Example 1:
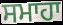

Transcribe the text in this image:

ਸਮਾਹਾ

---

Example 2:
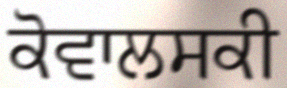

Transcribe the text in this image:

ਕੋਵਾਲਸਕੀ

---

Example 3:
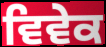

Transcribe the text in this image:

ਵਿਵੇਕ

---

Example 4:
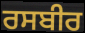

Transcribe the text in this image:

ਰਸਬੀਰ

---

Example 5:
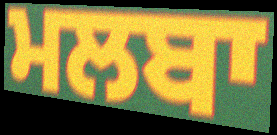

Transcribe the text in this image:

ਮਲਬਾ